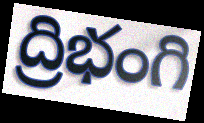
ద్రిభంగి